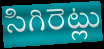
సిగిరెట్లు